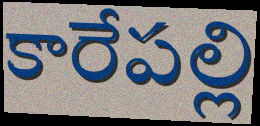
కారేపల్లి